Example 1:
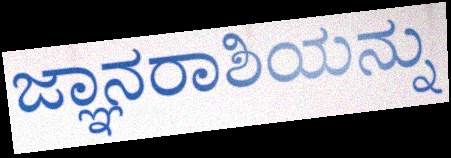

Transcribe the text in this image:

ಜ್ಞಾನರಾಶಿಯನ್ನು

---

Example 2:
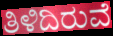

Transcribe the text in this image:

ತಿಳಿದಿರುವೆ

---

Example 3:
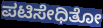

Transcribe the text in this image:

ಪಟಿಸೇಧಿತೋ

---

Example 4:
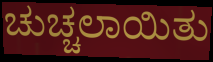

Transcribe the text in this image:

ಚುಚ್ಚಲಾಯಿತು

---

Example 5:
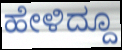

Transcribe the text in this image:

ಹೇಳಿದ್ದೂ